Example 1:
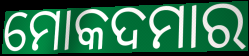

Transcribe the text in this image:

ମୋକଦମାର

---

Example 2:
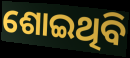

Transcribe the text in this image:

ଶୋଇଥିବି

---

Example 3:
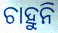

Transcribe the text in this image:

ଚାହୁନି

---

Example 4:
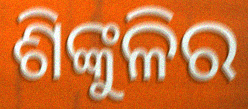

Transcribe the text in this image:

ଶିଙ୍କୁଳିର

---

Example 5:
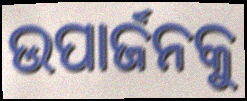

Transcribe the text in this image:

ଉପାର୍ଜନକୁ